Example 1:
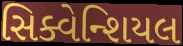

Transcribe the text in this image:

સિક્વેન્શિયલ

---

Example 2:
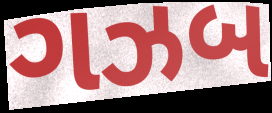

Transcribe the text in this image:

ગઝબ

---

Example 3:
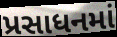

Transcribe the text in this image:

પ્રસાધનમાં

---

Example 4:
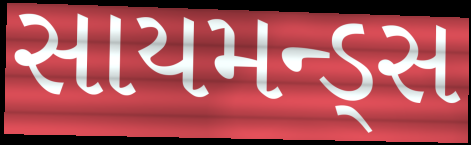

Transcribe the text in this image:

સાયમન્ડ્સ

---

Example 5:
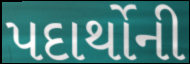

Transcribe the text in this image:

પદાર્થોની